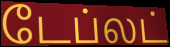
டேப்லட்